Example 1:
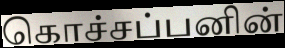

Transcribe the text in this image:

கொச்சப்பனின்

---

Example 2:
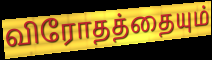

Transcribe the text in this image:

விரோதத்தையும்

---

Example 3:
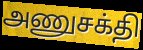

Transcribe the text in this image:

அணுசக்தி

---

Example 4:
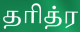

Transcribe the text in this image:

தரித்ர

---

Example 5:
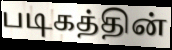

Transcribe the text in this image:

படிகத்தின்